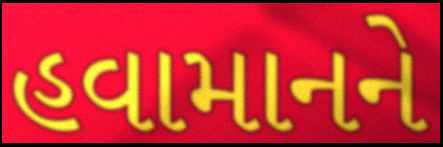
હવામાનને